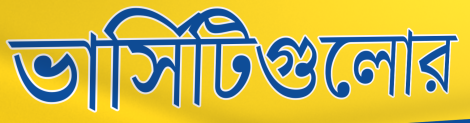
ভার্সিটিগুলোর